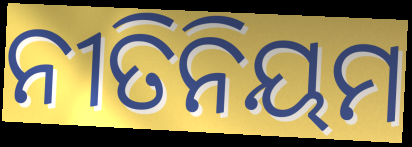
ନୀତିନିୟମ